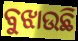
ବୁଝାଉଛି